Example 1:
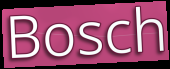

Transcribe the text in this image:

Bosch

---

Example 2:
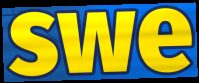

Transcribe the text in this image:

swe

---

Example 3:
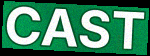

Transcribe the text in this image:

CAST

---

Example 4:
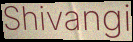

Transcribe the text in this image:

Shivangi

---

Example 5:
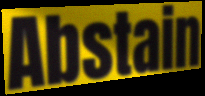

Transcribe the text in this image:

Abstain